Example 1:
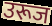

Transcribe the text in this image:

उरूज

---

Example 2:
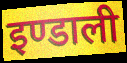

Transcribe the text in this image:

इण्डाली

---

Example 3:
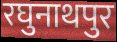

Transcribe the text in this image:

रघुनाथपुर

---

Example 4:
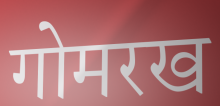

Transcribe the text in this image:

गोमरख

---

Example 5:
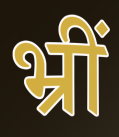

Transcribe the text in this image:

भ्रीं